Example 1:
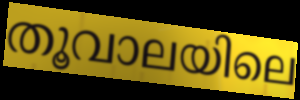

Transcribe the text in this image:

തൂവാലയിലെ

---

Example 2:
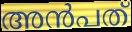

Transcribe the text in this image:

അൻപത്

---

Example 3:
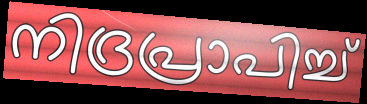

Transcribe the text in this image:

നിദ്രപ്രാപിച്ച്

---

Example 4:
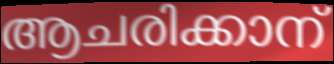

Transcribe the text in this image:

ആചരിക്കാന്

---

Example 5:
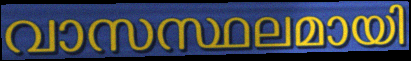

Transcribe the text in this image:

വാസസ്ഥലമായി